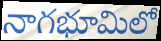
నాగభూమిలో